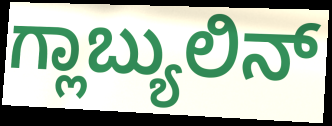
ಗ್ಲಾಬ್ಯುಲಿನ್